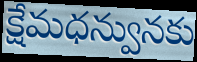
క్షేమధన్వునకు